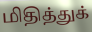
மிதித்துக்